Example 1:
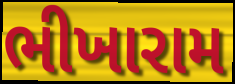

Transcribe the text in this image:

ભીખારામ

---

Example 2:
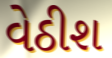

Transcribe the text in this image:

વેઠીશ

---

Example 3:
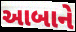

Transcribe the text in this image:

આબાને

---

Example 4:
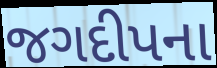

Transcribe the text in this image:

જગદીપના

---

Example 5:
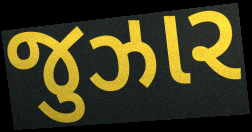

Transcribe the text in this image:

જુઝાર